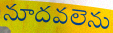
నూదవలెను